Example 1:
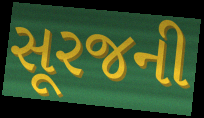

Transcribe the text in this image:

સૂરજની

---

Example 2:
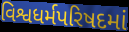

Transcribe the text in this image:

વિશ્વધર્મપરિષદમાં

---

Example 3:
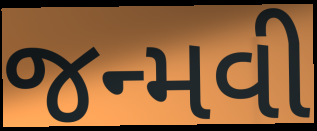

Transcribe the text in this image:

જન્મવી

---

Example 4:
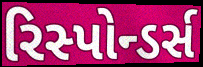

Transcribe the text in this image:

રિસ્પોન્ડર્સ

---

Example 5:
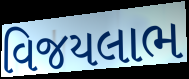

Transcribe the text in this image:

વિજયલાભ